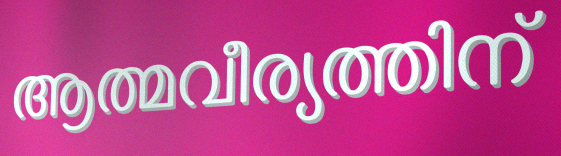
ആത്മവീര്യത്തിന്